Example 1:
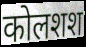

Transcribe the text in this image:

कोलशश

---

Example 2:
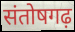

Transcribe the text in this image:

संतोषगढ़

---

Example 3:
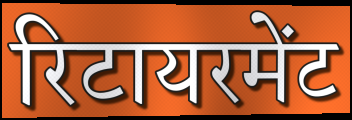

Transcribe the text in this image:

रिटायरमेंट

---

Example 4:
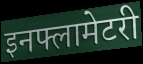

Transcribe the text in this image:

इनफ्लामेटरी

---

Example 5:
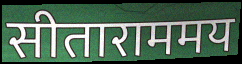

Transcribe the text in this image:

सीताराममय